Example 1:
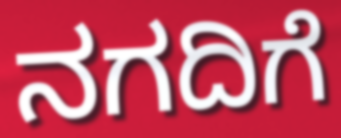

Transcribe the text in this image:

ನಗದಿಗೆ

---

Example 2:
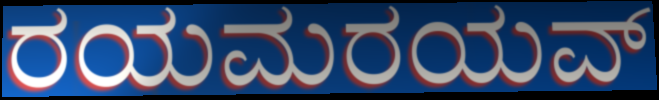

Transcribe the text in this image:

ರಯಮರಯವ್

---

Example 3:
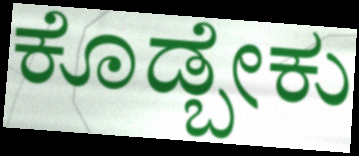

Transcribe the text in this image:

ಕೊಡ್ಬೇಕು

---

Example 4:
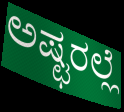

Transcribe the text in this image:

ಅಷ್ಟರಲ್ಲೆ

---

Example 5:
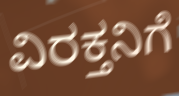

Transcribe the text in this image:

ವಿರಕ್ತನಿಗೆ